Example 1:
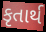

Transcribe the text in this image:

કૃતાર્થ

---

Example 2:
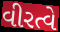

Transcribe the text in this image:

વીરત્વે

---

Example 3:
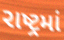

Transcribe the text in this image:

રાષ્ટ્રમાં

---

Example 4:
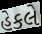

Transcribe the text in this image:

હેકલે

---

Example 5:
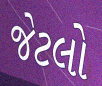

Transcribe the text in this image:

જેટલો